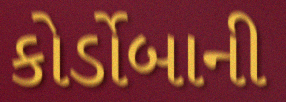
કોર્ડોબાની